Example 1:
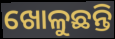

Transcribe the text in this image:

ଖୋଳୁଛନ୍ତି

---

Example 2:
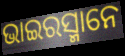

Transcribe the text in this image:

ଭାଇରସ୍ମାନେ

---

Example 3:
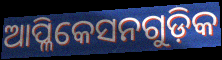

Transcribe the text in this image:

ଆପ୍ଳିକେସନଗୁଡ଼ିକ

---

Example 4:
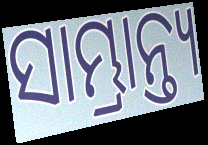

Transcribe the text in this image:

ସାମ୍ଭ୍ରାନ୍ତ୍ୟ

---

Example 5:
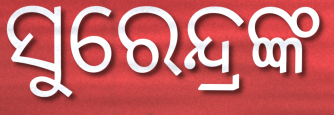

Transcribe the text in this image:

ସୁରେନ୍ଦ୍ରଙ୍କ